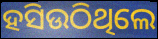
ହସିଉଠିଥିଲେ